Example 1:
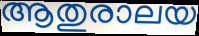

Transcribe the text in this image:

ആതുരാലയ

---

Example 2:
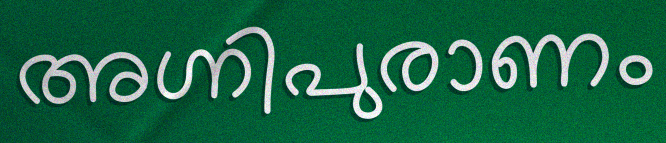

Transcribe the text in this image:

അഗ്നിപുരാണം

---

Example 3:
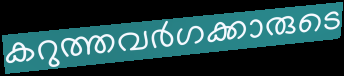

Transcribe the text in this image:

കറുത്തവർഗക്കാരുടെ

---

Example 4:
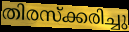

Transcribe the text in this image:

തിരസ്ക്കരിച്ചു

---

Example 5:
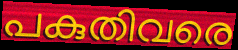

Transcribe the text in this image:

പകുതിവരെ